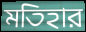
মতিহার